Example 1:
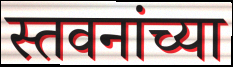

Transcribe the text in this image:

स्तवनांच्या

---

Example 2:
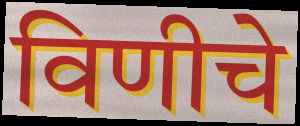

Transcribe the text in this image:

विणीचे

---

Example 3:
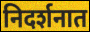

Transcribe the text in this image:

निदर्शनात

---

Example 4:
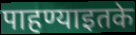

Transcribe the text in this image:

पाहण्याइतके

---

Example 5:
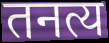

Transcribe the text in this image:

तनत्य